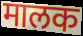
मालक